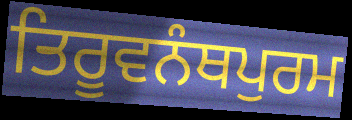
ਤਿਰੂਵਨੰਥਪੁਰਮ